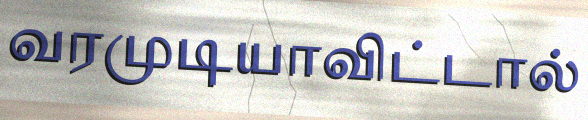
வரமுடியாவிட்டால்